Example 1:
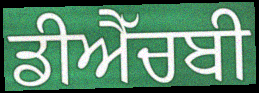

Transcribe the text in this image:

ਡੀਐੱਚਬੀ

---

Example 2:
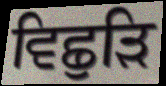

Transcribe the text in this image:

ਵਿਛੁੜਿ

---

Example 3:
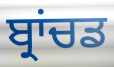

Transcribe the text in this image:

ਬ੍ਰਾਂਚਡ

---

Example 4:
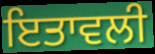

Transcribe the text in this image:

ਇਤਾਵਲੀ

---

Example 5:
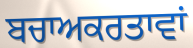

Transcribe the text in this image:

ਬਚਾਅਕਰਤਾਵਾਂ